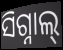
ସିଗ୍ନାଲ୍